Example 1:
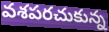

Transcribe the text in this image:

వశపరచుకున్న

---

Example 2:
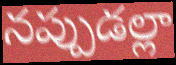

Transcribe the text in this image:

నప్పుడల్లా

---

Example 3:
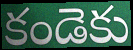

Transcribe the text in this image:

కండెకు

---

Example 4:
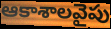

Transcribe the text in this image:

ఆకాశాలవైపు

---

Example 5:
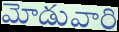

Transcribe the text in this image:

మోడువారి